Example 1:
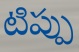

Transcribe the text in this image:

టిప్పు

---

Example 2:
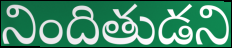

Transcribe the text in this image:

నిందితుడని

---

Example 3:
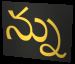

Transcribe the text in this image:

న్ను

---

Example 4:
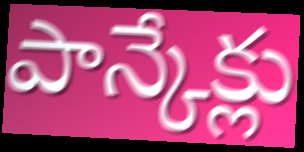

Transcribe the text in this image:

పాన్కేక్లు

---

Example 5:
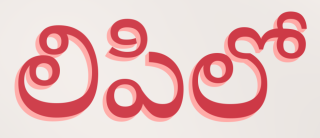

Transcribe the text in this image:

లిపిలో